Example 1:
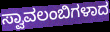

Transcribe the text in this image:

ಸ್ವಾವಲಂಬಿಗಳಾದ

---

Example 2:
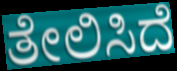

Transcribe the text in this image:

ತೇಲಿಸಿದೆ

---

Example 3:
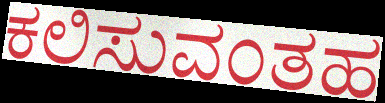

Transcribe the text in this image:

ಕಲಿಸುವಂತಹ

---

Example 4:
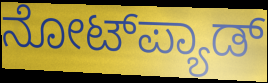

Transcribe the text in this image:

ನೋಟ್‌ಪ್ಯಾಡ್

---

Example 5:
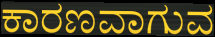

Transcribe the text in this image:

ಕಾರಣವಾಗುವ